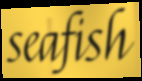
seafish